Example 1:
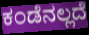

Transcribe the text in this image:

ಕಂಡೆನಲ್ಲದೆ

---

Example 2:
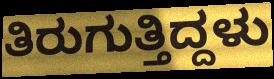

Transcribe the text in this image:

ತಿರುಗುತ್ತಿದ್ದಳು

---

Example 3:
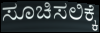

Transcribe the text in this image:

ಸೂಚಿಸಲಿಕ್ಕೆ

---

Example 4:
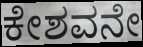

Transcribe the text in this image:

ಕೇಶವನೇ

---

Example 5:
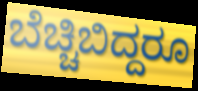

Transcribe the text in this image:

ಬೆಚ್ಚಿಬಿದ್ದರೂ